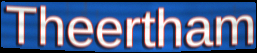
Theertham